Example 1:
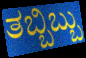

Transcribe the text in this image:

ತಬ್ಬಿಬ್ಬು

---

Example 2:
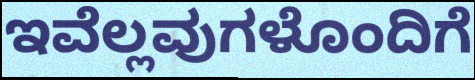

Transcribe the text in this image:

ಇವೆಲ್ಲವುಗಳೊಂದಿಗೆ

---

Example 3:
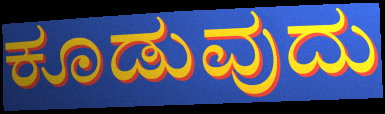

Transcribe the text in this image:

ಕೂಡುವುದು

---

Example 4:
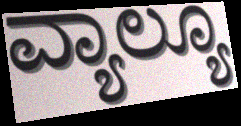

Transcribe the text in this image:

ವ್ಯಾಲ್ಯೂ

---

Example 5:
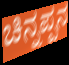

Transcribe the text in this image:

ಚಿನ್ನಪ್ಪನ